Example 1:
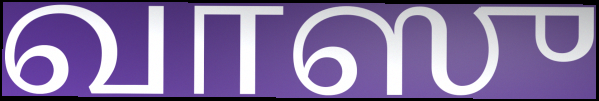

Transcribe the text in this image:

வாஸு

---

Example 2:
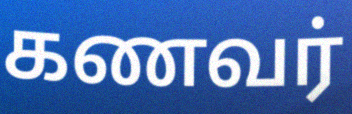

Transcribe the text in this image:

கணவர்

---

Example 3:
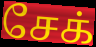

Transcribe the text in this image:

சேக்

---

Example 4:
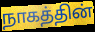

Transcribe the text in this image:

நாகத்தின்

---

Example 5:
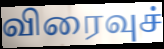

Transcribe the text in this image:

விரைவுச்